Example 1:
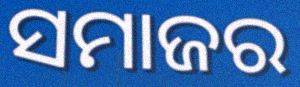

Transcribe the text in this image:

ସମାଜର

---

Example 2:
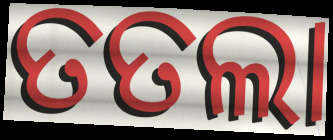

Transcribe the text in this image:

ତତଲା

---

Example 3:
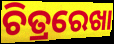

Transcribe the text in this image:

ଚିତ୍ରରେଖା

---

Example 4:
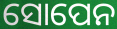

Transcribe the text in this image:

ସୋପେନ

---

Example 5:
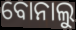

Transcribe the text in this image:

ବୋନାଲୁ